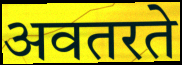
अवतरते